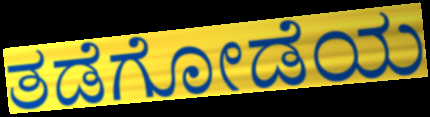
ತಡೆಗೋಡೆಯ